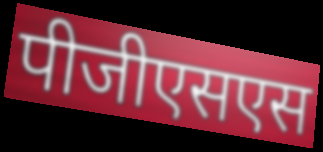
पीजीएसएस